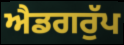
ਐਡਗਰੁੱਪ